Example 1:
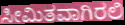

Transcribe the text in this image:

ಸೀಮಿತವಾಗಿರಲಿ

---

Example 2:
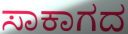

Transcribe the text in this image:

ಸಾಕಾಗದ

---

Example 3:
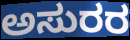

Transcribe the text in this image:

ಅಸುರರ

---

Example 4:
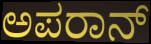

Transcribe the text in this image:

ಅಪರಾನ್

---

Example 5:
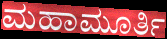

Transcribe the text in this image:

ಮಹಾಮೂರ್ತಿ